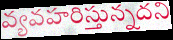
వ్యవహరిస్తున్నదని